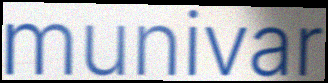
munivar